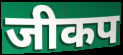
जीकप